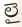
లై